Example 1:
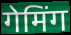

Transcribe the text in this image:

गेमिंग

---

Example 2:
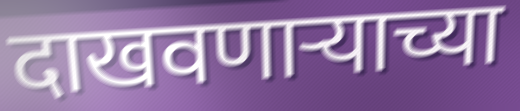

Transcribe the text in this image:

दाखवणाऱ्याच्या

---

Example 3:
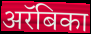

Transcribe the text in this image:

अरॅबिका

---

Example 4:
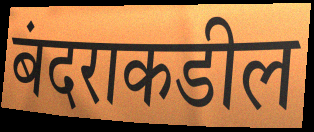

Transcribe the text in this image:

बंदराकडील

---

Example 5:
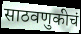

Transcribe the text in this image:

साठवणुकीचं